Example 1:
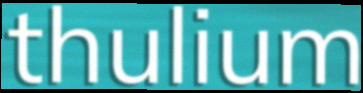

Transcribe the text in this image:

thulium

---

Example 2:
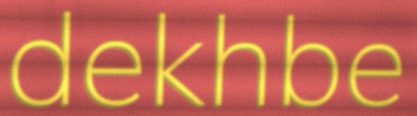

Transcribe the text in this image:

dekhbe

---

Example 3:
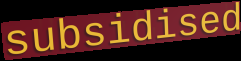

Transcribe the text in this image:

subsidised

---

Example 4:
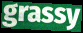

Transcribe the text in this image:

grassy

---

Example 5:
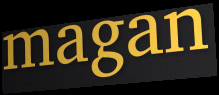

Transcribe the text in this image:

magan